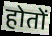
होतों